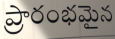
ప్రారంభమైన